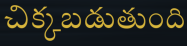
చిక్కబడుతుంది